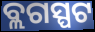
ବ୍ଲଗସ୍ପଟ